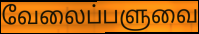
வேலைப்பளுவை